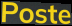
Poste